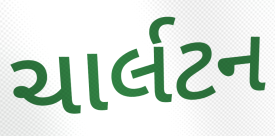
ચાર્લટન